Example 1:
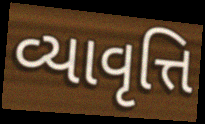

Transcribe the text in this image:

વ્યાવૃત્તિ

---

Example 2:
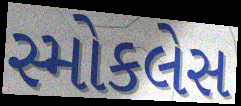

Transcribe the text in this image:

સ્મોકલેસ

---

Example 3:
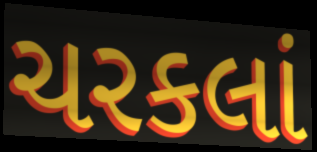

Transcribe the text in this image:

ચરકલાં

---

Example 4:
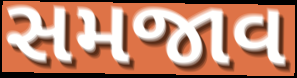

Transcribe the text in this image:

સમજાવ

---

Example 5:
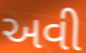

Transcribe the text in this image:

અવી